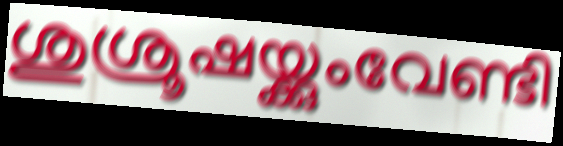
ശുശ്രൂഷയ്ക്കുംവേണ്ടി